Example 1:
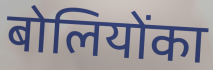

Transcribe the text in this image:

बोलियोंका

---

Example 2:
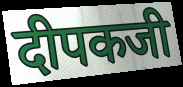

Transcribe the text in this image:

दीपकजी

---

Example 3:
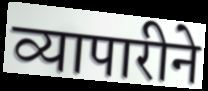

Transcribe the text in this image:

व्यापारीने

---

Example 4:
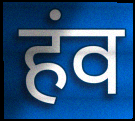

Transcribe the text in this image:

हंव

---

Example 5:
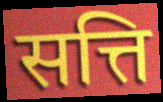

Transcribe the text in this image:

सत्ति